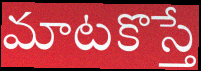
మాటకొస్తే